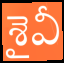
శైవీ